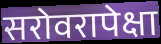
सरोवरापेक्षा